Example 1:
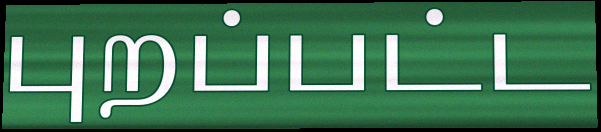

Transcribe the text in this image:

புறப்பட்ட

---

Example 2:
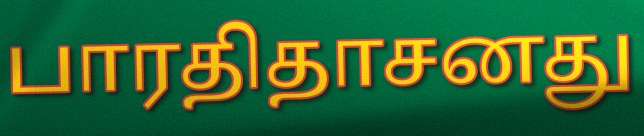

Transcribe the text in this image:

பாரதிதாசனது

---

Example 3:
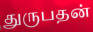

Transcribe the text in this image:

துருபதன்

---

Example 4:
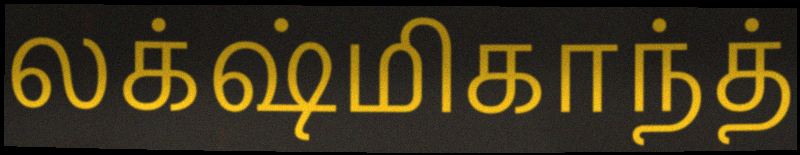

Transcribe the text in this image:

லக்‌ஷ்மிகாந்த்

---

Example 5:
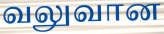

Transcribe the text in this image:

வலுவான